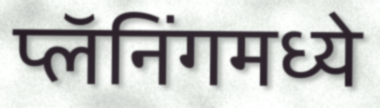
प्लॅनिंगमध्ये